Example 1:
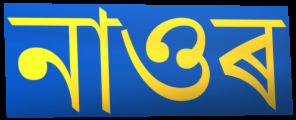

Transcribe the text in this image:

নাওৰ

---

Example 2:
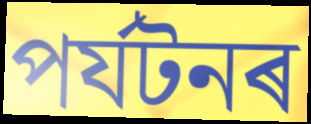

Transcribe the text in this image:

পৰ্যটনৰ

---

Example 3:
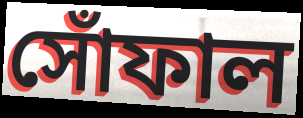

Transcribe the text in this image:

সোঁফাল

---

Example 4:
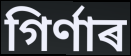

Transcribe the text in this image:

গিৰ্ণাৰ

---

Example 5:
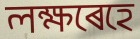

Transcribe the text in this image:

লক্ষৰেহে